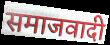
समाजवादी